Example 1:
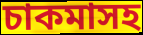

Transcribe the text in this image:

চাকমাসহ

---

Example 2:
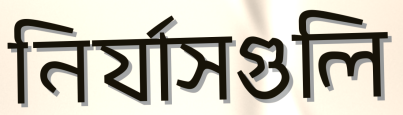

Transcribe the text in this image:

নির্যাসগুলি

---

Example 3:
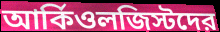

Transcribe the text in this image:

আর্কিওলজিস্টদের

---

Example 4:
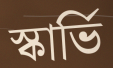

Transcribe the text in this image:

স্কার্ভি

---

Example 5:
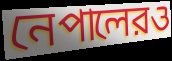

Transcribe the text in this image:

নেপালেরও